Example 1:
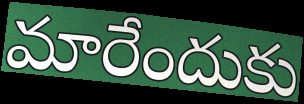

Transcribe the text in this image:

మారేందుకు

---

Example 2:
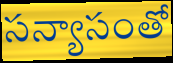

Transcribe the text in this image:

సన్యాసంతో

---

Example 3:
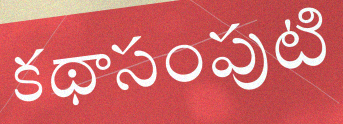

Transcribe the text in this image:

కథాసంపుటి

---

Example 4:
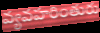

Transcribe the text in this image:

వ్యవహరింతురు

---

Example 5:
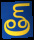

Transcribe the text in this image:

త్